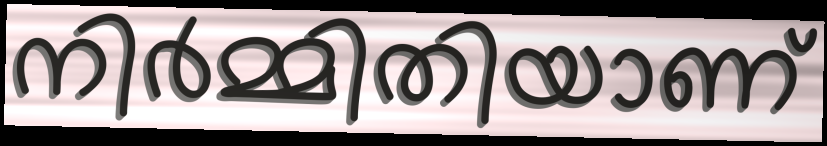
നിർമ്മിതിയാണ്